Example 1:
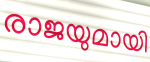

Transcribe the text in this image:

രാജയുമായി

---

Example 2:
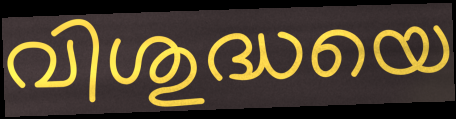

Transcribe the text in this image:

വിശുദ്ധയെ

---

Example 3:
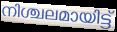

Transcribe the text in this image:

നിശ്ചലമായിട്ട്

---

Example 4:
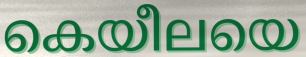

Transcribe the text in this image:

കെയീലയെ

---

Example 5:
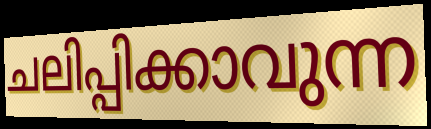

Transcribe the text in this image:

ചലിപ്പിക്കാവുന്ന